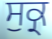
ਸੁਕ੍ਰ